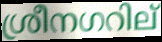
ശ്രീനഗറില്